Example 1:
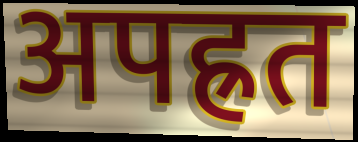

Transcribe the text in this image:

अपह्रत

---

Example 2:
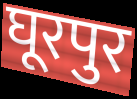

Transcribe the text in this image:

घूरपुर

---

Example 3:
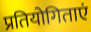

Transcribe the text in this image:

प्रतियोगिताएं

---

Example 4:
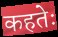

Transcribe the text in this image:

कहतेः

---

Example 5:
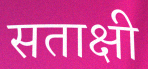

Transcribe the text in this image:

सताक्षी